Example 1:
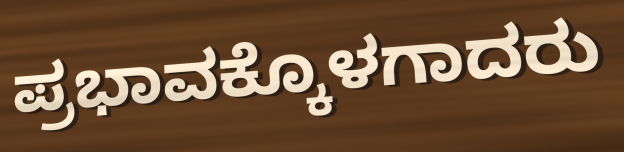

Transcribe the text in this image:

ಪ್ರಭಾವಕ್ಕೊಳಗಾದರು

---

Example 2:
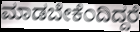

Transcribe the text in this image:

ಮಾಡಬೇಕೆಂದಿದ್ದರೆ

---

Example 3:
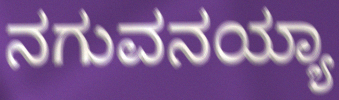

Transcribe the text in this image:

ನಗುವನಯ್ಯಾ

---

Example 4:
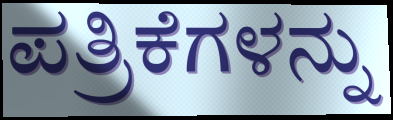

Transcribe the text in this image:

ಪತ್ರಿಕೆಗಳನ್ನು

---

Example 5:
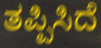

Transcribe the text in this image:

ತಪ್ಪಿಸಿದೆ